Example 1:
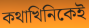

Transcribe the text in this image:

কথাখিনিকেই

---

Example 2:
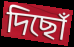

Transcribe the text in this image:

দিছোঁ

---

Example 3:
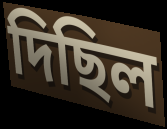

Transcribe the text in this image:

দিছিল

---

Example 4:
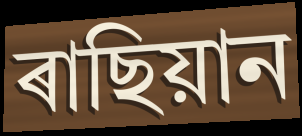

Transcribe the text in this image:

ৰাছিয়ান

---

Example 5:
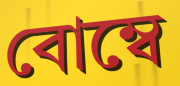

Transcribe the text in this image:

বোম্বে